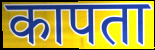
कापता